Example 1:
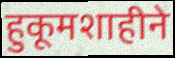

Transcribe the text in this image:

हुकूमशाहीने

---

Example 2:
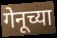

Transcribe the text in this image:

गेनूच्या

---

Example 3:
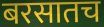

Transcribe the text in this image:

बरसातच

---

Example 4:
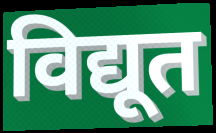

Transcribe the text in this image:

विद्यूत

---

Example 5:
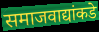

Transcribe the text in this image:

समाजवाद्यांकडे